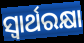
ସ୍ଵାର୍ଥରକ୍ଷା